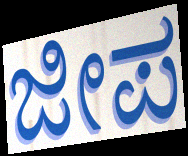
ಜೀಪ